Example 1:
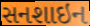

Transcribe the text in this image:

સનશાઇન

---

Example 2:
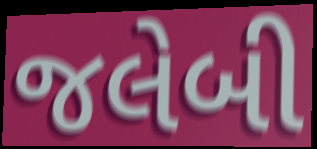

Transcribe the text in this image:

જલેબી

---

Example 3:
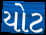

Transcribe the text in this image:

યોટ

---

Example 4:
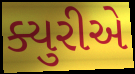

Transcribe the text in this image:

ક્યુરીએ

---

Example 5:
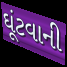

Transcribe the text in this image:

ઘૂંટવાની